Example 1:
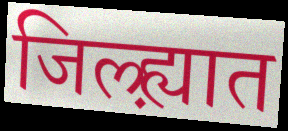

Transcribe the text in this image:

जिल्ह्य़ात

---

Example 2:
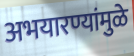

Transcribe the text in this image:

अभयारण्यांमुळे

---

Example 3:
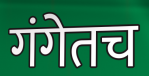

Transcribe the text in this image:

गंगेतच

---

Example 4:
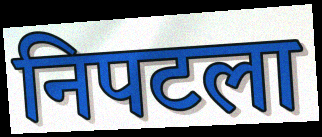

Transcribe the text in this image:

निपटला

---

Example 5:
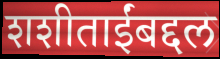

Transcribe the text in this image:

शशीताईंबद्दल